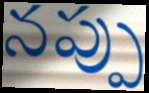
నప్పు